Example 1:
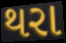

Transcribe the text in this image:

થરા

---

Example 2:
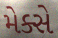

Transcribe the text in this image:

મેક્સે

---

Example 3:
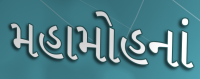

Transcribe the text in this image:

મહામોહનાં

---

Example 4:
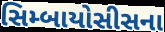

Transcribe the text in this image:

સિમ્બાયોસીસના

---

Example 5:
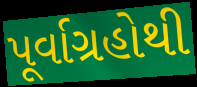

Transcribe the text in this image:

પૂર્વાગ્રહોથી